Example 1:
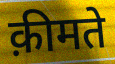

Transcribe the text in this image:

क़ीमते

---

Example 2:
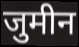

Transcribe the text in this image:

जुमीन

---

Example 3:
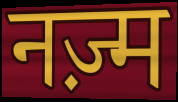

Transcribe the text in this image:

नज़्म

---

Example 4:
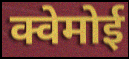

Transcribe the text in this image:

क्वेमोई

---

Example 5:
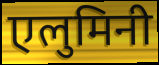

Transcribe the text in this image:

एलुमिनी